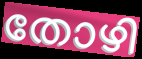
തോഴി